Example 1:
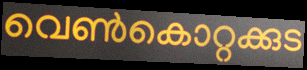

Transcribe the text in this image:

വെൺകൊറ്റക്കുട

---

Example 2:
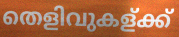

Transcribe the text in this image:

തെളിവുകള്ക്ക്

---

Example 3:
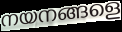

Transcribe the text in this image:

നയനങ്ങളെ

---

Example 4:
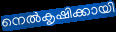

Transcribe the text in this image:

നെൽകൃഷിക്കായി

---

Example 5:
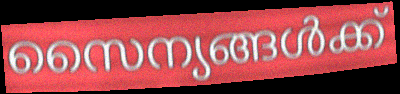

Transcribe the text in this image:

സൈന്യങ്ങൾക്ക്